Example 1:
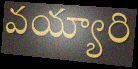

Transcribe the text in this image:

వయ్యారి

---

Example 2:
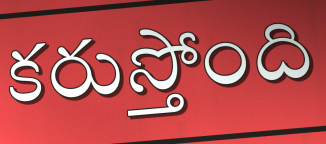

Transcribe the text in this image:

కరుస్తోంది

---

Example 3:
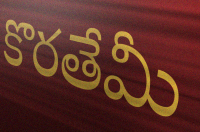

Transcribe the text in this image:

కొరతేమీ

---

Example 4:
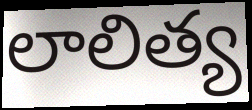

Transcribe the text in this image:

లాలిత్య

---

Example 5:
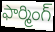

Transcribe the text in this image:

ఫార్మింగ్